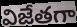
విజేతగా